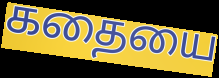
கதையை